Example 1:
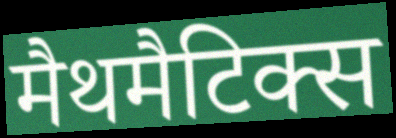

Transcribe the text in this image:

मैथमैटिक्स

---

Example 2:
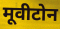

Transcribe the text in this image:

मूवीटोन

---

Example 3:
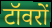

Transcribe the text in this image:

टॉवरों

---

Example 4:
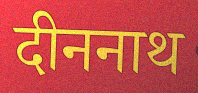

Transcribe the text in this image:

दीननाथ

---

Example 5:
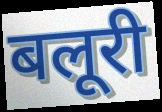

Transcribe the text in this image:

बलूरी